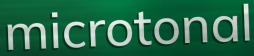
microtonal